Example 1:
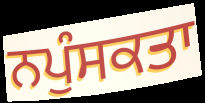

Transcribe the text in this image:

ਨਪੁੰਸਕਤਾ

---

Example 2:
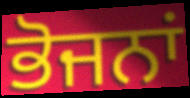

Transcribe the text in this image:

ਭੋਜਨਾਂ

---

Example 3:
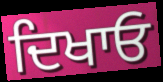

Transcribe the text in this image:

ਦਿਖਾਓ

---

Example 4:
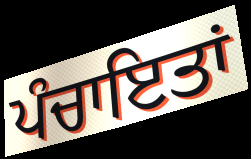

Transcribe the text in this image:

ਪੰਚਾਇਤਾਂ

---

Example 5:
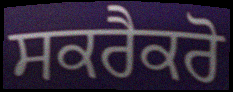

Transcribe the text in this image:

ਸਕਰੈਕਰੋ